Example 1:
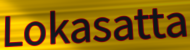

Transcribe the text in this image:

Lokasatta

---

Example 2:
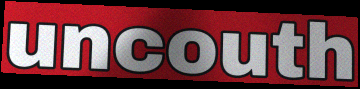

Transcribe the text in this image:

uncouth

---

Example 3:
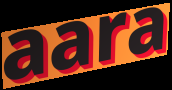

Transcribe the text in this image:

aara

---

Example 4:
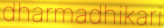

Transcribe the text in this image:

dharmadhikari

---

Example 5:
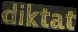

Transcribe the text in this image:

diktat